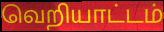
வெறியாட்டம்